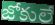
జోకులే